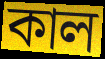
কাল